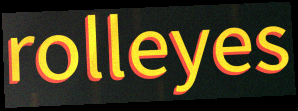
rolleyes